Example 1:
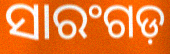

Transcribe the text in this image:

ସାରଂଗଡ଼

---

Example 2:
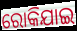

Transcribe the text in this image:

ରୋକିଯାଇ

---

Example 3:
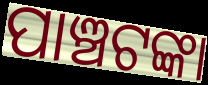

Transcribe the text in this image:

ପାଞ୍ଚଟଙ୍କା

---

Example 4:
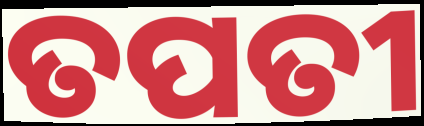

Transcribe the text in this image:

ତପତୀ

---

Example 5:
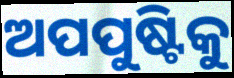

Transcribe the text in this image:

ଅପପୁଷ୍ଟିକୁ